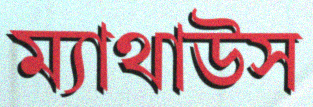
ম্যাথাউস